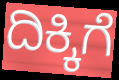
ದಿಕ್ಕಿಗೆ